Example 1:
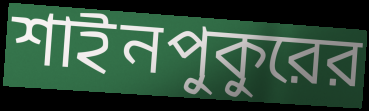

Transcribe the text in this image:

শাইনপুকুরের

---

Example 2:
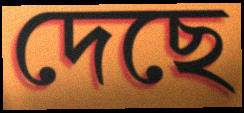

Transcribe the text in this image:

দেছে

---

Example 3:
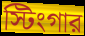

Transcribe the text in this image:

স্টিংগার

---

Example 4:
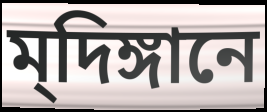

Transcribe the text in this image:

ম্‌দিঙ্গানে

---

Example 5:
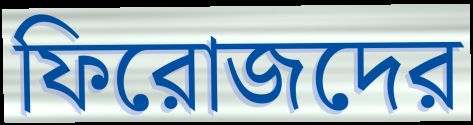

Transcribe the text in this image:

ফিরোজদের